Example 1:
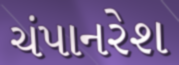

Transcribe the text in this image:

ચંપાનરેશ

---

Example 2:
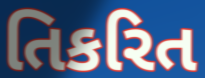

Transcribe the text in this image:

તિકરિત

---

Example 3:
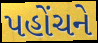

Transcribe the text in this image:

પહોંચને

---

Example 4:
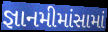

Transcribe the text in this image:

જ્ઞાનમીમાંસામાં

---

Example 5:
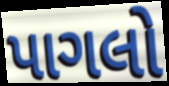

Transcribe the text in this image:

પાગલો